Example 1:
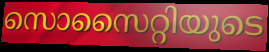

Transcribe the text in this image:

സൊസൈറ്റിയുടെ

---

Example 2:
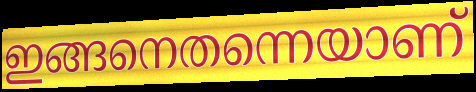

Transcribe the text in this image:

ഇങ്ങനെതന്നെയാണ്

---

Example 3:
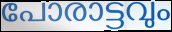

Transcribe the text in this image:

പോരാട്ടവും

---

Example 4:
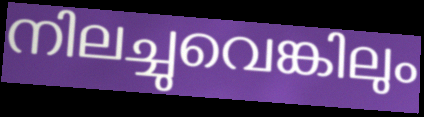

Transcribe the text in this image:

നിലച്ചുവെങ്കിലും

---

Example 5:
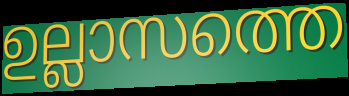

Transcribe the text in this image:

ഉല്ലാസത്തെ